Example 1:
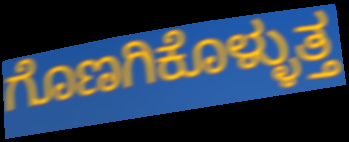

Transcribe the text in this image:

ಗೊಣಗಿಕೊಳ್ಳುತ್ತ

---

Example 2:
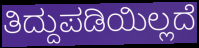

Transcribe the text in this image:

ತಿದ್ದುಪಡಿಯಿಲ್ಲದೆ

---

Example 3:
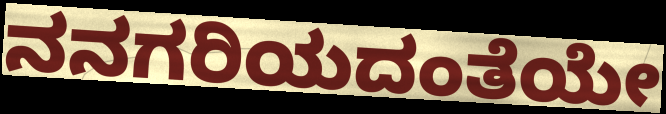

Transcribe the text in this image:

ನನಗರಿಯದಂತೆಯೇ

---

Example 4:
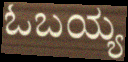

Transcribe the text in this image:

ಓಬಯ್ಯ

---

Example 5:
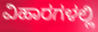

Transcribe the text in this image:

ವಿಹಾರಗಳಲ್ಲಿ